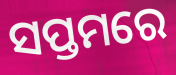
ସପ୍ତମରେ